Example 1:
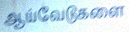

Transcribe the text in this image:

ஆய்வேடுகளை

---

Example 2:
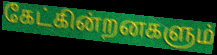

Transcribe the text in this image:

கேட்கின்றனகளும்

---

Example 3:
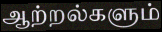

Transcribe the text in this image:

ஆற்றல்களும்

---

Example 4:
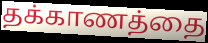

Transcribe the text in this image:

தக்காணத்தை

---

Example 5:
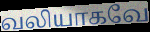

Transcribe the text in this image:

வலியாகவே